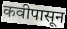
कवीपासून